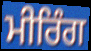
ਮੀਰਿੰਗ